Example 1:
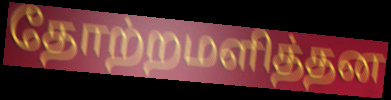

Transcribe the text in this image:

தோற்றமளித்தன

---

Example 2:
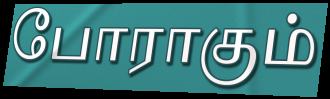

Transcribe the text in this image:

போராகும்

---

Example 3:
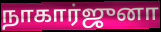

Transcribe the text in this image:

நாகார்ஜுனா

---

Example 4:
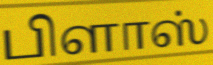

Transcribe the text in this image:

பிளாஸ்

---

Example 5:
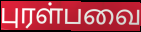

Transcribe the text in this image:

புரள்பவை